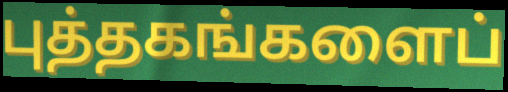
புத்தகங்களைப்